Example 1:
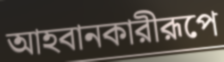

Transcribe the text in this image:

আহবানকারীরূপে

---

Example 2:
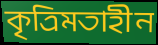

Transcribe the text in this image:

কৃত্রিমতাহীন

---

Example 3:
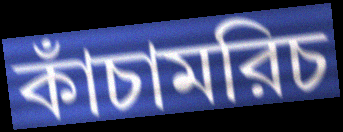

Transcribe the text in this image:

কাঁচামরিচ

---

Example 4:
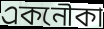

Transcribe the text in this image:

একনৌকা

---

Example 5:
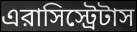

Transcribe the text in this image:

এরাসিস্ট্রেটাস